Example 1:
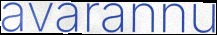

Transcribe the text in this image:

avarannu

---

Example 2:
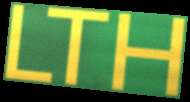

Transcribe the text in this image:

LTH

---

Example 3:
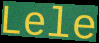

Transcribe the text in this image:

Lele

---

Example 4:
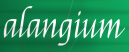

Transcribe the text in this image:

alangium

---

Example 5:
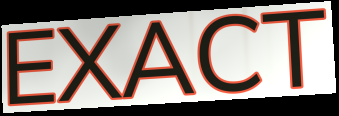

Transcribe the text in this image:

EXACT